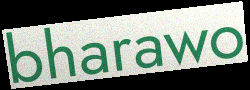
bharawo